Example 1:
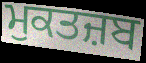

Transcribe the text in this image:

ਮੁਕਤਜ਼ਬ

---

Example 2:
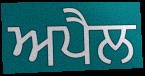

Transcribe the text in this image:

ਅਪੈਲ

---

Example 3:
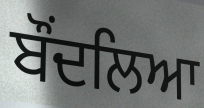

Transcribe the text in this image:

ਬੌਂਦਲਿਆ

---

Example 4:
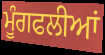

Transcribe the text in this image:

ਮੂੰਗਫਲੀਆਂ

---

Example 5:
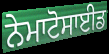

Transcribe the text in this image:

ਨੇਮਾਟੋਸਾਈਡ